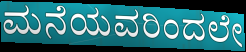
ಮನೆಯವರಿಂದಲೇ